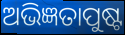
ଅଭିଜ୍ଞତାପୁଷ୍ଟ